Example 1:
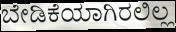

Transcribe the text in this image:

ಬೇಡಿಕೆಯಾಗಿರಲಿಲ್ಲ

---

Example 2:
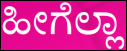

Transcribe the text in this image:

ಹೀಗೆಲ್ಲಾ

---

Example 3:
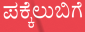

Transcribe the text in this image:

ಪಕ್ಕೆಲುಬಿಗೆ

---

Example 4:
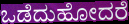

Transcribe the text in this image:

ಒಡೆದುಹೋದರೆ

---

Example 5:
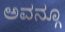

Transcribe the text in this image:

ಅವನ್ಗೂ